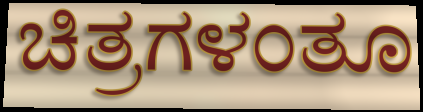
ಚಿತ್ರಗಳಂತೂ